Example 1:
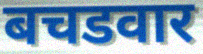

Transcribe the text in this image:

बचडवार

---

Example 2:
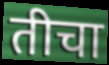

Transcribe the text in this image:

तीचा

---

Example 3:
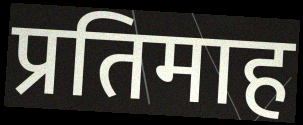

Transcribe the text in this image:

प्रतिमाह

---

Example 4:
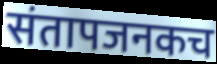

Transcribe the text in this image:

संतापजनकच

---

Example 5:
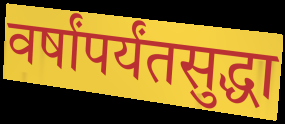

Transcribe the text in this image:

वर्षांपर्यंतसुद्धा